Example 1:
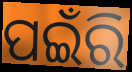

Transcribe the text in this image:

ପଇଁରି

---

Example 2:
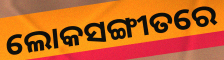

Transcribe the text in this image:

ଲୋକସଙ୍ଗୀତରେ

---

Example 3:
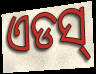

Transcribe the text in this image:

ଏଡସ୍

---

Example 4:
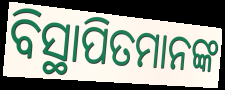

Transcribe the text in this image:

ବିସ୍ଥାପିତମାନଙ୍କ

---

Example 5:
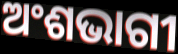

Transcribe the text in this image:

ଅଂଶଭାଗୀ